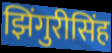
झिंगुरीसिंह